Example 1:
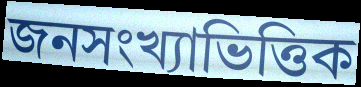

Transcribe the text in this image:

জনসংখ্যাভিত্তিক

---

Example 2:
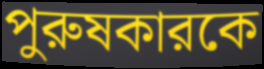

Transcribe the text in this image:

পুরুষকারকে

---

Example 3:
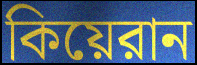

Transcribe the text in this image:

কিয়েরান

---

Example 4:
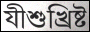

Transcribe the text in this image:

যীশুখ্রিষ্ট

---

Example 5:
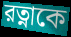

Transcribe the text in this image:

রত্নাকে